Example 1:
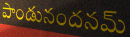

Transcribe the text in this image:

పాండునందనమ్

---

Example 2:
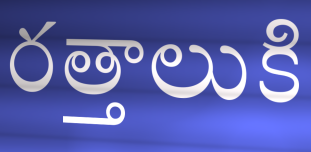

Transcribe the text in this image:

రత్తాలుకి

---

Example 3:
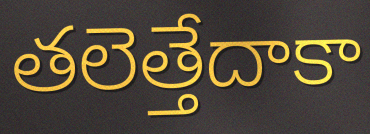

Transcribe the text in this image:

తలెత్తేదాకా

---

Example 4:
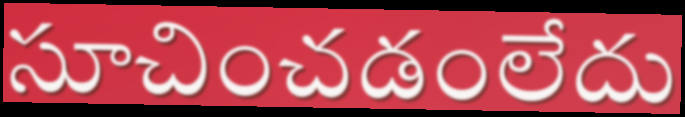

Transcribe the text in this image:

సూచించడంలేదు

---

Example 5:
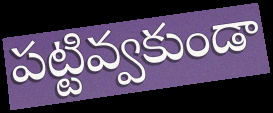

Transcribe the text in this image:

పట్టివ్వకుండా